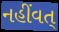
નહીંવત્